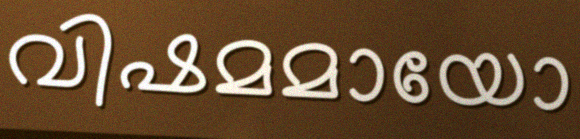
വിഷമമായോ